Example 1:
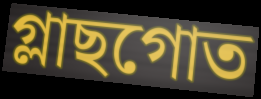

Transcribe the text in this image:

গ্লাছগোত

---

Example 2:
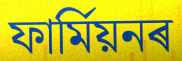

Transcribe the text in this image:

ফাৰ্মিয়নৰ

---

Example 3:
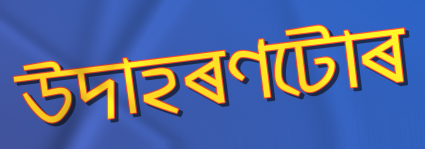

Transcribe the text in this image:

উদাহৰণটোৰ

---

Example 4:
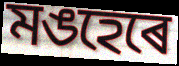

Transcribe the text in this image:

মঙহেৰে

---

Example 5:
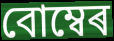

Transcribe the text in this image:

বোম্বেৰ